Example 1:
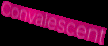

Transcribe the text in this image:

Convalescent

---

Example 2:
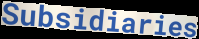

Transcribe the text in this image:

Subsidiaries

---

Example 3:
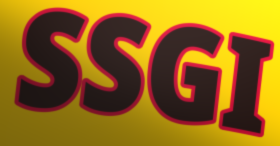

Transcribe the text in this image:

SSGI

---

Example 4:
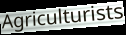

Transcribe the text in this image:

Agriculturists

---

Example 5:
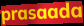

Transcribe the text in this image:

prasaada